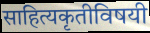
साहित्यकृतीविषयी